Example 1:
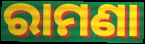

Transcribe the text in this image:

ରାମଣା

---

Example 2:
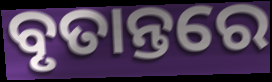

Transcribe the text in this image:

ବୃତାନ୍ତରେ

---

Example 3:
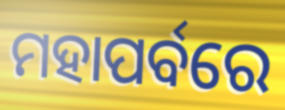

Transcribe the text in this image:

ମହାପର୍ବରେ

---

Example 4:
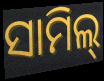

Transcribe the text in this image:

ସାମିଲ୍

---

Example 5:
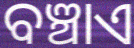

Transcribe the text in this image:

ବଞ୍ଚାଏ